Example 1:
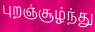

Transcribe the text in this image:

புறஞ்சூழ்ந்து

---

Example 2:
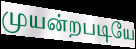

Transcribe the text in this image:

முயன்றபடியே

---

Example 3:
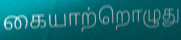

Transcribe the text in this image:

கையாற்றொழுது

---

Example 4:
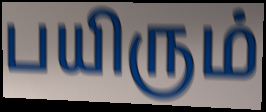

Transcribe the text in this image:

பயிரும்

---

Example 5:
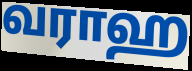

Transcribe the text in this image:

வராஹ